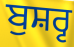
ਬੁਸ਼ਰ੍ਟ